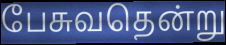
பேசுவதென்று